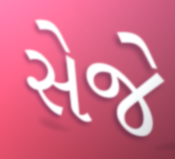
સેજે